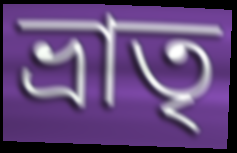
ভ্ৰাতৃ